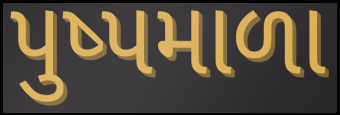
પુષ્પમાળા